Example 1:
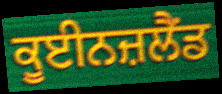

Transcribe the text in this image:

ਕੂਈਨਜ਼ਲੈਂਡ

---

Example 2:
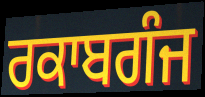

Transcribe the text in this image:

ਰਕਾਬਗੰਜ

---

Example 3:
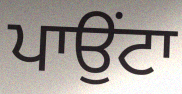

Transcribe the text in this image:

ਪਾਉਂਟਾ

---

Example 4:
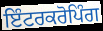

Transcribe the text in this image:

ਇੰਟਰਕਰੋਪਿੰਗ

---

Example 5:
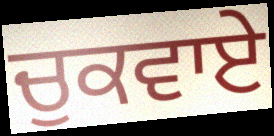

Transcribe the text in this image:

ਚੁਕਵਾਏ